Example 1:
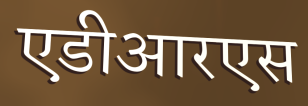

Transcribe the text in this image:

एडीआरएस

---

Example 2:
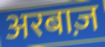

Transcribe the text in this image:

अरबाज़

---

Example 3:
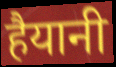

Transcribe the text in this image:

हैयानी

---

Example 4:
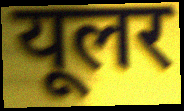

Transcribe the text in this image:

यूलर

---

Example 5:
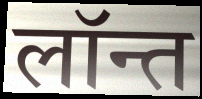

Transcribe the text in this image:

लॉन्त